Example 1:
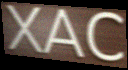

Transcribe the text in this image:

XAC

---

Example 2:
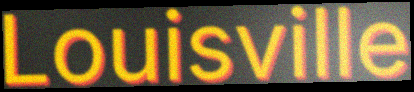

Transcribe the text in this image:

Louisville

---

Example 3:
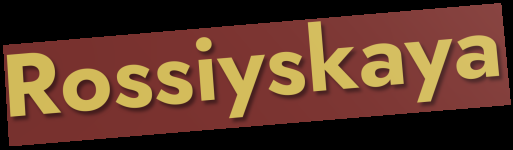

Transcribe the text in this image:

Rossiyskaya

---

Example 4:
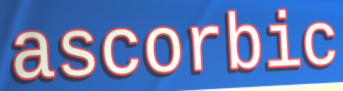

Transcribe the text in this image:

ascorbic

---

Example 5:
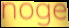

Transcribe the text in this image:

noge